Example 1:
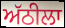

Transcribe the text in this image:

ਅੱਠੀਲਾ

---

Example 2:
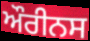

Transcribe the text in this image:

ਔਰੀਨਸ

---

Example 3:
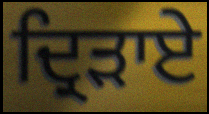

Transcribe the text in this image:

ਦ੍ਰਿੜਾਏ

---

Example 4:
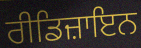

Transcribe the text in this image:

ਰੀਡਿਜ਼ਾਇਨ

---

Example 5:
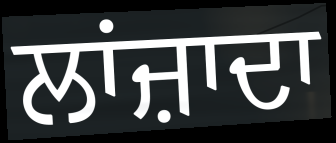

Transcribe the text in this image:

ਲਾਂਜ਼ਾਦਾ